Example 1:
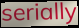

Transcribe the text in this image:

serially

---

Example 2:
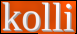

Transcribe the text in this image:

kolli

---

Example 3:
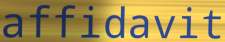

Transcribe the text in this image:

affidavit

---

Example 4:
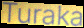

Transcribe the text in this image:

Turaka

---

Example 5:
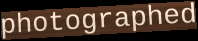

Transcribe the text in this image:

photographed